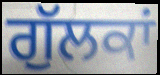
ਗੁੱਲਕਾਂ